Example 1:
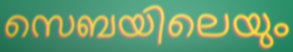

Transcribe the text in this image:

സെബയിലെയും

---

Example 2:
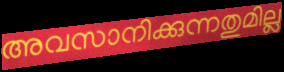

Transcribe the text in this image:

അവസാനിക്കുന്നതുമില്ല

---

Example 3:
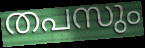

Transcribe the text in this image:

തപസും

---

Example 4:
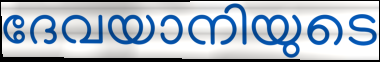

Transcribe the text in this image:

ദേവയാനിയുടെ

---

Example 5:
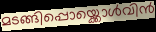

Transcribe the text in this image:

മടങ്ങിപ്പൊയ്ക്കൊൾവിൻ